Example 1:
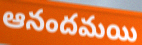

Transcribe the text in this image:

ఆనందమయి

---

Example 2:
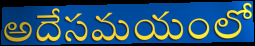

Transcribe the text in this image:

అదేసమయంలో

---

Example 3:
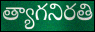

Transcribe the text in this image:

త్యాగనిరతి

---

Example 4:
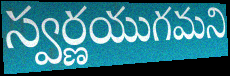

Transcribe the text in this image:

స్వర్ణయుగమని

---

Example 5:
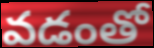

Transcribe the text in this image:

వడంతో